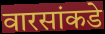
वारसांकडे